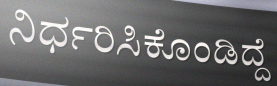
ನಿರ್ಧರಿಸಿಕೊಂಡಿದ್ದೆ